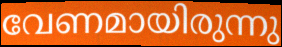
വേണമായിരുന്നു